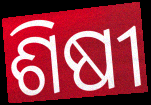
ଶିଷୀ